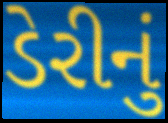
ડેરીનું